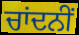
ਚਾਂਦਨੀਂ